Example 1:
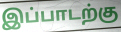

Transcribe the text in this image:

இப்பாடற்கு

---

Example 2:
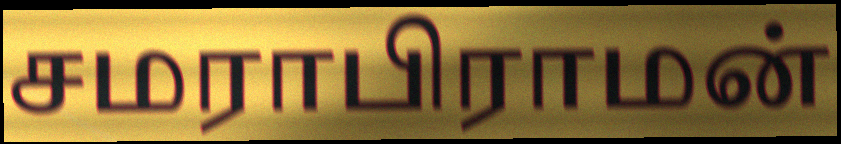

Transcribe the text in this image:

சமராபிராமன்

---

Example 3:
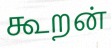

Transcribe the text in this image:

கூறன்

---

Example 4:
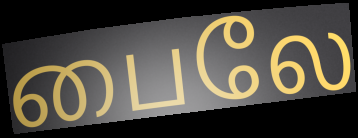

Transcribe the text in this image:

பைலே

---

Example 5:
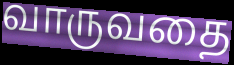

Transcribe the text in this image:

வாருவதை